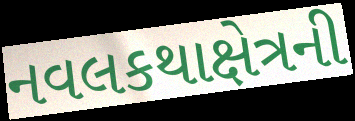
નવલકથાક્ષેત્રની